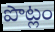
పొట్లం